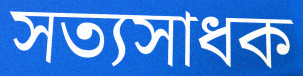
সত্যসাধক